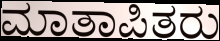
ಮಾತಾಪಿತರು